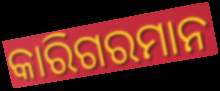
କାରିଗରମାନ